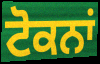
ਟੋਕਨਾਂ